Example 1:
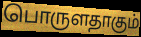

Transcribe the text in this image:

பொருளதாகும்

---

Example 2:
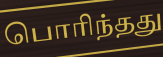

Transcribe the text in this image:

பொரிந்தது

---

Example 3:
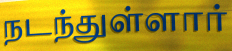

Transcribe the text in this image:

நடந்துள்ளார்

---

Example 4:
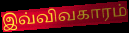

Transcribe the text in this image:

இவ்விவகாரம்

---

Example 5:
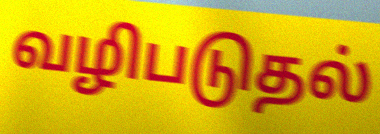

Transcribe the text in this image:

வழிபடுதல்